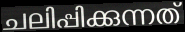
ചലിപ്പിക്കുന്നത്